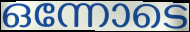
ഒന്നോടെ